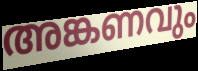
അങ്കണവും